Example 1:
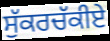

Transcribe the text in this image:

ਸੁੱਕਰਚੱਕੀਏ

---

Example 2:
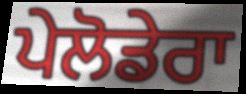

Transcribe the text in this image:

ਪੇਲੋਡੇਰਾ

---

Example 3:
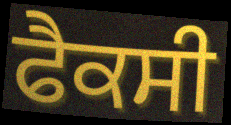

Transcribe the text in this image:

ਫੈਕਸੀ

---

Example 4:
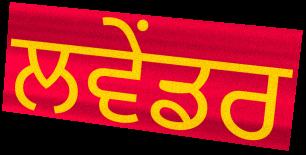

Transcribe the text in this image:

ਲਵੇਂਡਰ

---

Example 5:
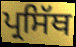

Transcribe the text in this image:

ਪ੍ਰਸਿੱਥ